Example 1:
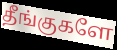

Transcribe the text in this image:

தீங்குகளே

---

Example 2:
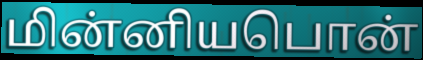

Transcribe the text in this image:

மின்னியபொன்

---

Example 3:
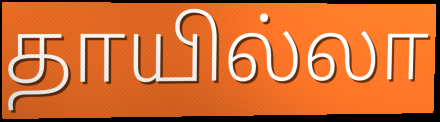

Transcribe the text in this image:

தாயில்லா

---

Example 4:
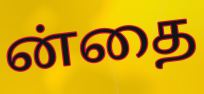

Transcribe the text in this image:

ன்தை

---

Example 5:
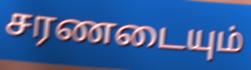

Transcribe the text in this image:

சரணடையும்